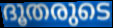
ദൂതരുടെ